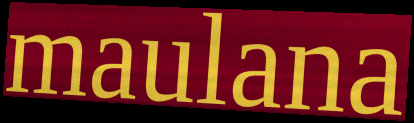
maulana